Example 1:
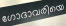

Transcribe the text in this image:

ഗോദാവരിയെ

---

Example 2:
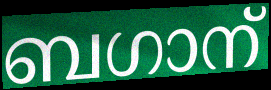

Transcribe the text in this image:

ബഗാന്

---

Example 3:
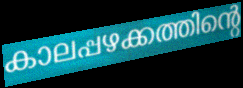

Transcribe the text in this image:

കാലപ്പഴക്കത്തിന്റെ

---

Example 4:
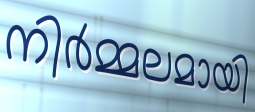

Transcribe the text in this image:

നിർമ്മലമായി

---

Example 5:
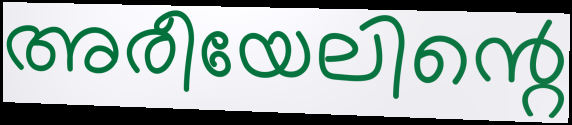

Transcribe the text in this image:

അരീയേലിന്റെ